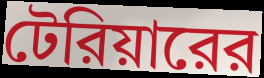
টেরিয়ারের